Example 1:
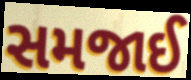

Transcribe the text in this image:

સમજાઈ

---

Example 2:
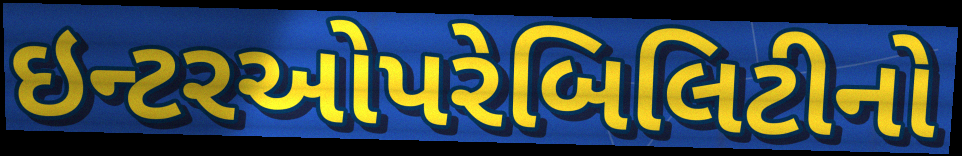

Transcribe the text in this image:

ઇન્ટરઓપરેબિલિટીનો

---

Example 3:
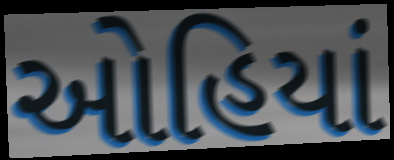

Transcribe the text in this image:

ઓહિયાં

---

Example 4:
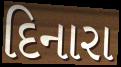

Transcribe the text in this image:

દિનારા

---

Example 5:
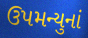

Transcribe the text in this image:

ઉપમન્યુનાં